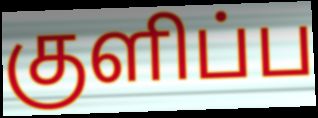
குளிப்ப